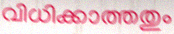
വിധിക്കാത്തതും